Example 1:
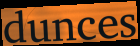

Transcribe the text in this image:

dunces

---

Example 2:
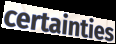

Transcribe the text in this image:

certainties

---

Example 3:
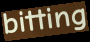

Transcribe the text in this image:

bitting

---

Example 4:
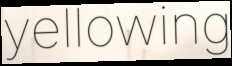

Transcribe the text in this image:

yellowing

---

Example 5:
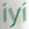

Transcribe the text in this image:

iyi